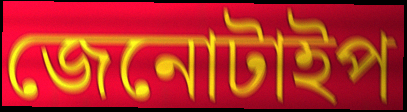
জেনোটাইপ